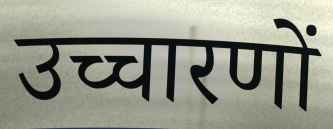
उच्चारणों